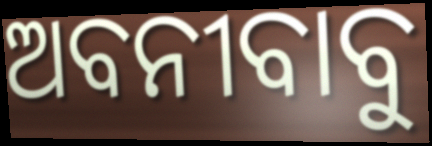
ଅବନୀବାବୁ